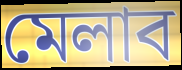
মেলাব